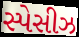
સ્પેસીઝ